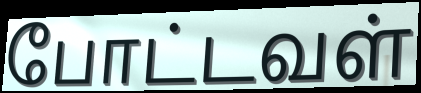
போட்டவள்